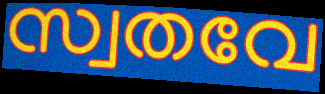
സ്വതവേ